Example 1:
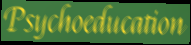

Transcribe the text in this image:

Psychoeducation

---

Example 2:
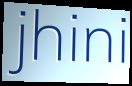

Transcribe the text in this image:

jhini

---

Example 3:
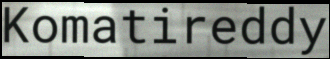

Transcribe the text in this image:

Komatireddy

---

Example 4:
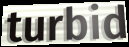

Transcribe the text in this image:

turbid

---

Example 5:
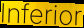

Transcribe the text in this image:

Inferior